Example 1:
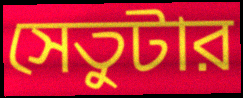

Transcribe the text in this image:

সেতুটার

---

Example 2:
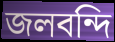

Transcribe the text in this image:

জলবন্দি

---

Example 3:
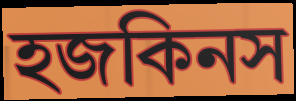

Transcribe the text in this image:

হজকিনস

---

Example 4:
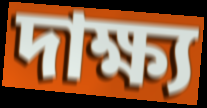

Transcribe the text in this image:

দাক্ষ্য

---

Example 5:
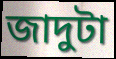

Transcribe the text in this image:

জাদুটা